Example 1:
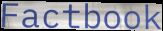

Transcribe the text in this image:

Factbook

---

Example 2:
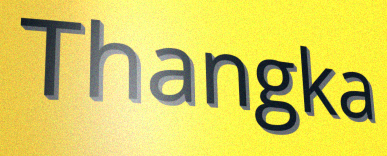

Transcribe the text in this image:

Thangka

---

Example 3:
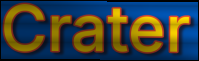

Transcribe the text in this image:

Crater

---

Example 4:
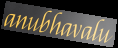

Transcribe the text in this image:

anubhavalu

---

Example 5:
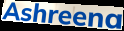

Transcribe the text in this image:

Ashreena